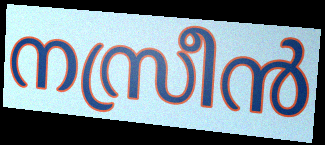
നസ്രീൻ